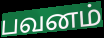
பவனம்